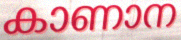
കാണാന